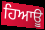
ਹਿਆਊ